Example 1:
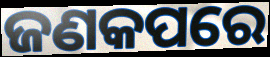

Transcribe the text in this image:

ଜଣକପରେ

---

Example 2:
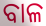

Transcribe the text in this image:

ବାଳ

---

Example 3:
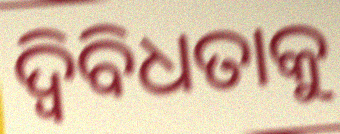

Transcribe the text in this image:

ଦ୍ୱିବିଧତାକୁ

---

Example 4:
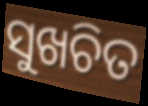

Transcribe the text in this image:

ସୁଖଚିତ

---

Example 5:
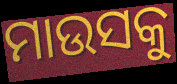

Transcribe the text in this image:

ମାଉସକୁ